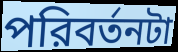
পরিবর্তনটা